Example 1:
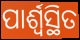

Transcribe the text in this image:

ପାର୍ଶ୍ୱସ୍ଥିତ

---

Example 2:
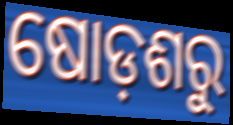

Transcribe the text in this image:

ଷୋଡ଼ଶରୁ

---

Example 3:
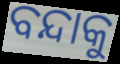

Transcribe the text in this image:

ବନ୍ଦାକୁ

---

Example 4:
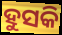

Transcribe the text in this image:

ହୁସକି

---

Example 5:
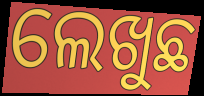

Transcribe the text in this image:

ଲେଖୁଛ